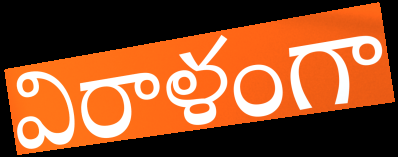
విరాళంగా